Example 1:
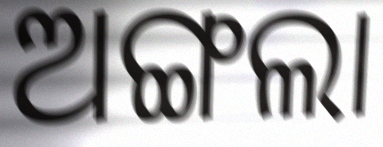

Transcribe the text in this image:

ଅଙ୍ଗଲା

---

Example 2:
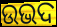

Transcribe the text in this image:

ଉଭଦ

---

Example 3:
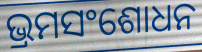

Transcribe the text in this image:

ଭ୍ରମସଂଶୋଧନ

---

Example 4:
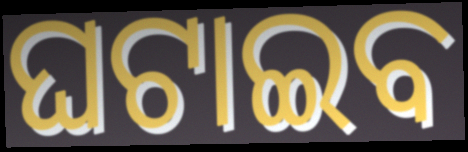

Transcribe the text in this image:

ଘଟାଇବ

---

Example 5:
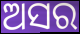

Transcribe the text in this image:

ଅସର